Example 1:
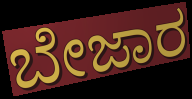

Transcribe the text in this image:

ಬೇಜಾರ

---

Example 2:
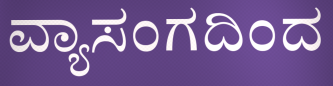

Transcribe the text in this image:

ವ್ಯಾಸಂಗದಿಂದ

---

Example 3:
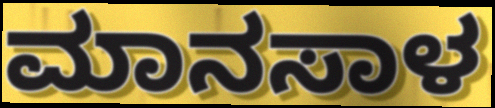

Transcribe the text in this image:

ಮಾನಸಾಳ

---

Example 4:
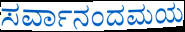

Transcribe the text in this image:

ಸರ್ವಾನಂದಮಯ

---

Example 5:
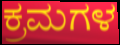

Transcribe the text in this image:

ಕ್ರಮಗಳ